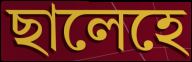
ছালেহে